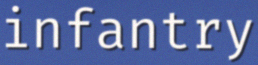
infantry